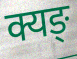
क्यङ्